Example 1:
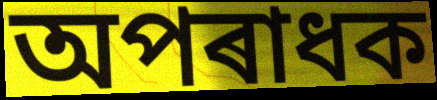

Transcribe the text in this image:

অপৰাধক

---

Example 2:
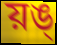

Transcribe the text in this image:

য়ঙ্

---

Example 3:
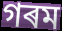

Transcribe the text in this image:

গৰম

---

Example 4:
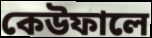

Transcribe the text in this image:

কেউফালে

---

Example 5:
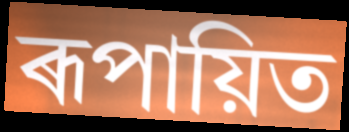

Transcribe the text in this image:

ৰূপায়িত